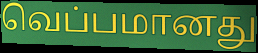
வெப்பமானது